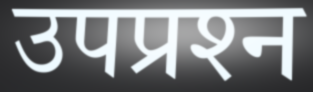
उपप्रश्‍न